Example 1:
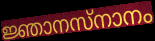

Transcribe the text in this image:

ജ്ഞാനസ്നാനം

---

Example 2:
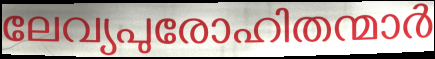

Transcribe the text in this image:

ലേവ്യപുരോഹിതന്മാർ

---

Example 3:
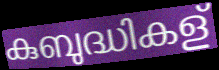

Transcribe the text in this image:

കുബുദ്ധികള്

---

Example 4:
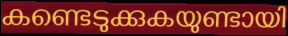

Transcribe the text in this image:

കണ്ടെടുക്കുകയുണ്ടായി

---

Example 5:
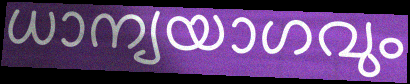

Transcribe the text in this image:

ധാന്യയാഗവും